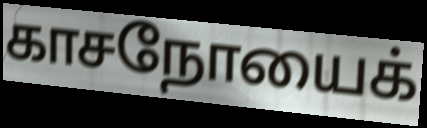
காசநோயைக்